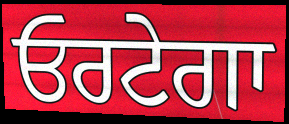
ਓਰਟੇਗਾ